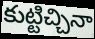
కుట్టిచ్చినా